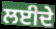
ਲਈਦੇ